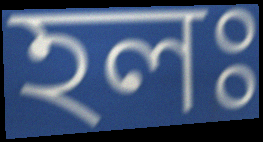
হলঃ